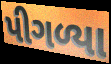
પીગળ્યા